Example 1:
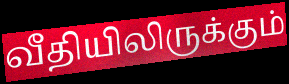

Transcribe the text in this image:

வீதியிலிருக்கும்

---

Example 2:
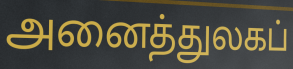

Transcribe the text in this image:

அனைத்துலகப்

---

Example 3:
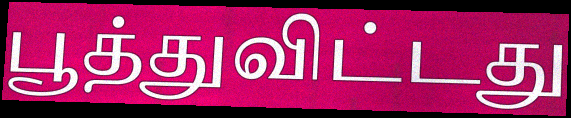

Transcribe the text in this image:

பூத்துவிட்டது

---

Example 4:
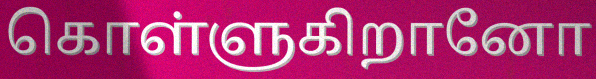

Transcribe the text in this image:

கொள்ளுகிறானோ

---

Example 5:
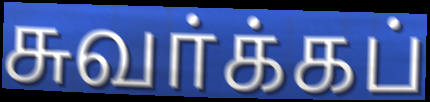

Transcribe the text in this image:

சுவர்க்கப்